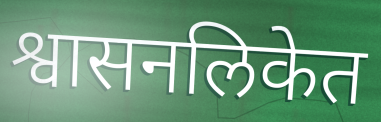
श्वासनलिकेत